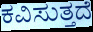
ಕವಿಸುತ್ತದೆ